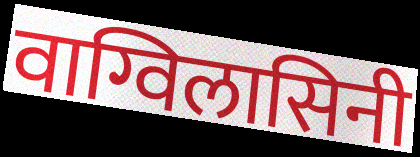
वाग्विलासिनी